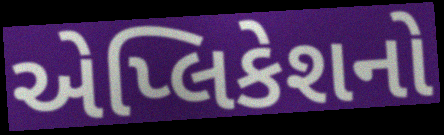
એપ્લિકેશનો